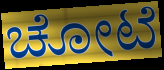
ಚೋಟೆ